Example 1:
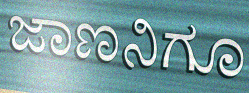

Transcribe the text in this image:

ಜಾಣನಿಗೂ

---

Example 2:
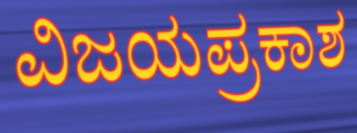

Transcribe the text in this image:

ವಿಜಯಪ್ರಕಾಶ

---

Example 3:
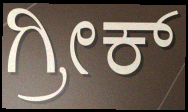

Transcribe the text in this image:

ಗ್ರೀಕ್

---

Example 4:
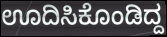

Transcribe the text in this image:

ಊದಿಸಿಕೊಂಡಿದ್ದ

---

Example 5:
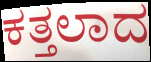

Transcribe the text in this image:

ಕತ್ತಲಾದ